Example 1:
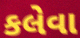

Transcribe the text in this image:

કલેવા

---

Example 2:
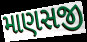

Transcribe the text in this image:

માણસજી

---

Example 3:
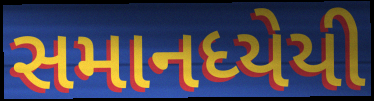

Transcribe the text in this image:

સમાનધ્યેયી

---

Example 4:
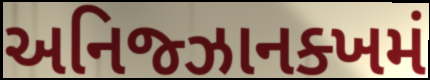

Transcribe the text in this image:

અનિજ્ઝાનક્ખમં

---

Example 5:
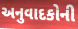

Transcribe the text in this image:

અનુવાદકોની